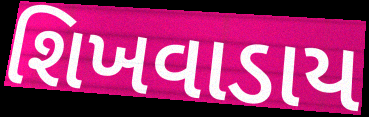
શિખવાડાય